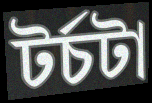
টর্চটা